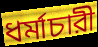
ধর্মাচারী